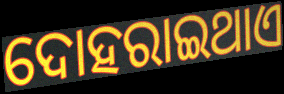
ଦୋହରାଇଥାଏ